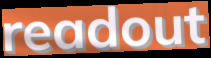
readout